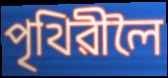
পৃথিৱীলৈ